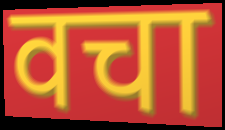
वचा